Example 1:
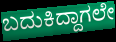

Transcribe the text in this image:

ಬದುಕಿದ್ದಾಗಲೇ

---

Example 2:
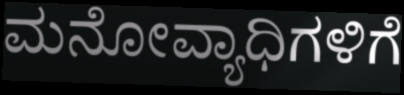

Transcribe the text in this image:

ಮನೋವ್ಯಾಧಿಗಳಿಗೆ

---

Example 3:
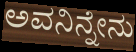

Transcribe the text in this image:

ಅವನಿನ್ನೇನು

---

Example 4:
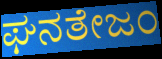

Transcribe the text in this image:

ಘನತೇಜಂ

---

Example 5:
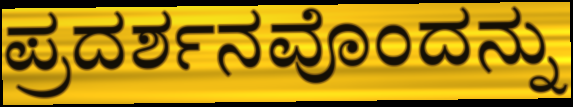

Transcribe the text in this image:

ಪ್ರದರ್ಶನವೊಂದನ್ನು